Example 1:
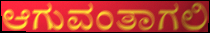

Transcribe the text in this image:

ಆಗುವಂತಾಗಲಿ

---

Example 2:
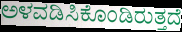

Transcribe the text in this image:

ಅಳವಡಿಸಿಕೊಂಡಿರುತ್ತದೆ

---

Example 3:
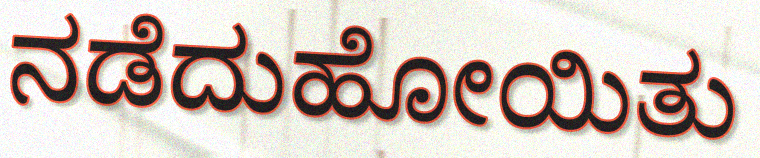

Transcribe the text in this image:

ನಡೆದುಹೋಯಿತು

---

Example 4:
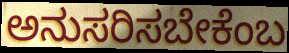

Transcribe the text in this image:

ಅನುಸರಿಸಬೇಕೆಂಬ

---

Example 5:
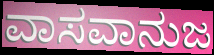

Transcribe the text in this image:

ವಾಸವಾನುಜ